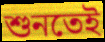
শুনতেই